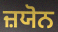
ਜ਼ਯੋਨ